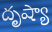
దృష్యా